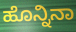
ಹೊನ್ನಿನಾ